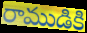
రాముడికి